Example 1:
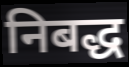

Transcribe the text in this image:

निबद्ध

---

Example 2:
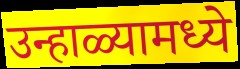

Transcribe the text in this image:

उन्हाळ्यामध्ये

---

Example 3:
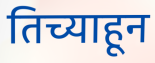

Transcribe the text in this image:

तिच्याहून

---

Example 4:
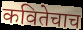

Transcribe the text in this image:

कवितेचाच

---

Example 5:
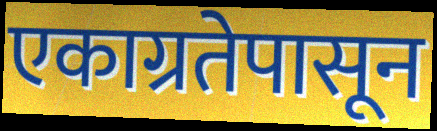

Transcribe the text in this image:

एकाग्रतेपासून